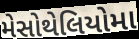
મેસોથેલિયોમા